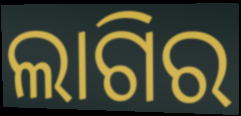
ଲାଗିର